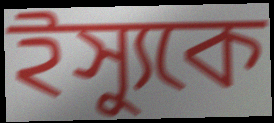
ইস্যুকে